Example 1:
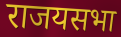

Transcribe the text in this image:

राजयसभा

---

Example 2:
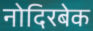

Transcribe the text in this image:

नोदिरबेक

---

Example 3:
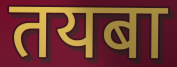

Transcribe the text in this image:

तयबा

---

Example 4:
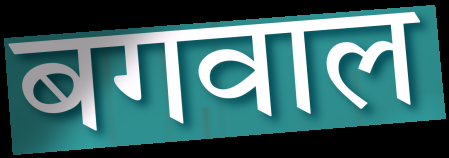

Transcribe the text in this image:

बगवाल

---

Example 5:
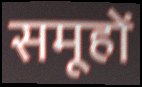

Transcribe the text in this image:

समूहों